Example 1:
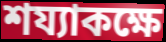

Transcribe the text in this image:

শয্যাকক্ষে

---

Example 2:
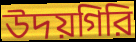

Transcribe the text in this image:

উদয়গিরি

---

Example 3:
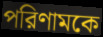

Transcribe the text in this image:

পরিণামকে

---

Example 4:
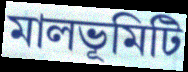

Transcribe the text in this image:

মালভূমিটি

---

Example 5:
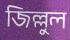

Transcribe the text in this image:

জিল্লুল